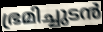
ഭ്രമിച്ചുടൻ